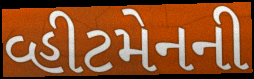
વ્હીટમેનની